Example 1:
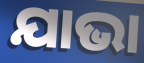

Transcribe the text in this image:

ଯାଭା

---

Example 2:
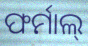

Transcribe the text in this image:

ଫର୍ମାଲ୍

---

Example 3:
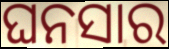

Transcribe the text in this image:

ଘନସାର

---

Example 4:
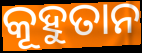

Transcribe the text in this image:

କୂହୁତାନ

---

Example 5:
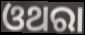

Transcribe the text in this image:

ଓଥରା